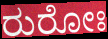
ರುರೋಃ